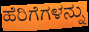
ಹೆರಿಗೆಗಳನ್ನು